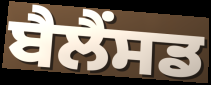
ਬੈਲੈਂਸਡ